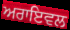
ਅਰਾਇਵਲ